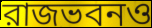
রাজভবনও